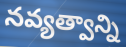
నవ్యత్వాన్ని